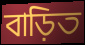
বাড়িত